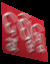
ଦ୍ରୁଷ୍ଟିକୁ